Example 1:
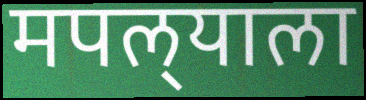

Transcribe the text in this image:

मपल्याला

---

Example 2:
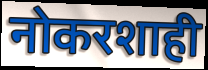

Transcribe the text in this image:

नोकरशाही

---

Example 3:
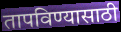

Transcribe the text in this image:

तापविण्यासाठी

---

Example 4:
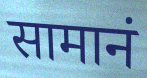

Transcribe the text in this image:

सामानं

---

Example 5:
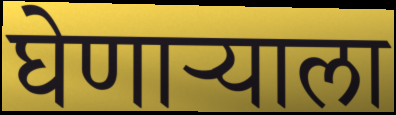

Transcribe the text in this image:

घेणार्‍याला